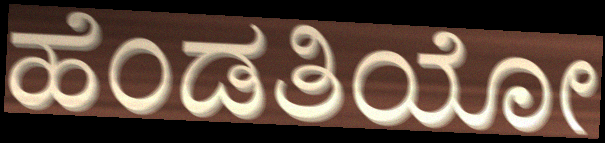
ಹೆಂಡತಿಯೋ